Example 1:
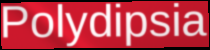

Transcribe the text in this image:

Polydipsia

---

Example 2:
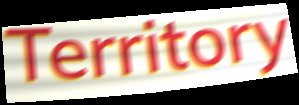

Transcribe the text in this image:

Territory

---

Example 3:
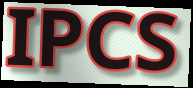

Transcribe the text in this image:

IPCS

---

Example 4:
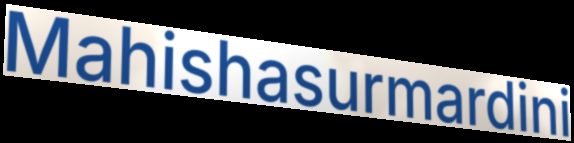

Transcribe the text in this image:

Mahishasurmardini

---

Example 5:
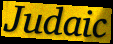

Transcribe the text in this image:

Judaic